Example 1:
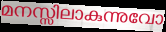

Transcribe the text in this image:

മനസ്സിലാകുന്നുവോ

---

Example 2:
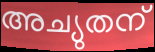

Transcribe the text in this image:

അച്യുതന്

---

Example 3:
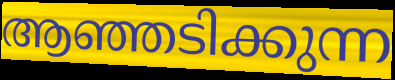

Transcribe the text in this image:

ആഞ്ഞടിക്കുന്ന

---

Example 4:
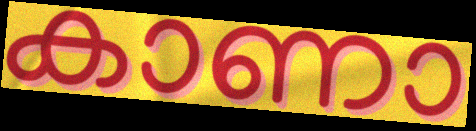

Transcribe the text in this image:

കാണാ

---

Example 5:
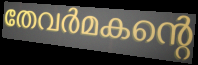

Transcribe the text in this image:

തേവർമകന്റെ